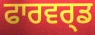
ਫਾਰਵਰ੍ਡ